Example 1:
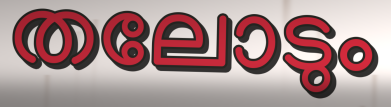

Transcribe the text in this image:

തലോടും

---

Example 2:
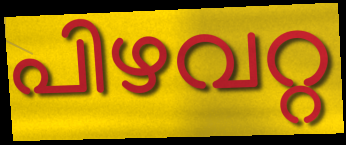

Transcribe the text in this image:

പിഴവറ്റ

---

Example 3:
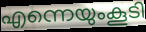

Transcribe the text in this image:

എന്നെയുംകൂടി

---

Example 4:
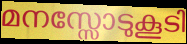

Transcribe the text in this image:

മനസ്സോടുകൂടി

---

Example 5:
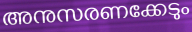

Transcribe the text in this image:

അനുസരണക്കേടും